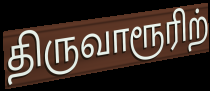
திருவாரூரிற்